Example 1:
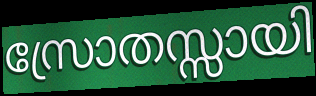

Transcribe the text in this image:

സ്രോതസ്സായി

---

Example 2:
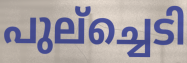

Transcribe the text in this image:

പുല്ച്ചെടി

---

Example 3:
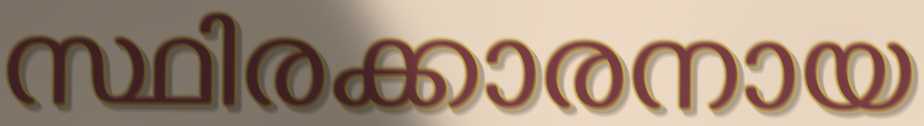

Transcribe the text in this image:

സ്ഥിരക്കാരനായ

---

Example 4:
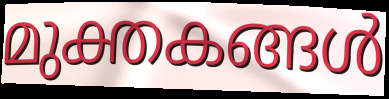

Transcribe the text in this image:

മുക്തകങ്ങൾ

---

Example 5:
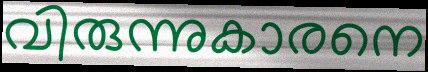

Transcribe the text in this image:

വിരുന്നുകാരനെ